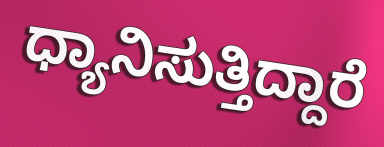
ಧ್ಯಾನಿಸುತ್ತಿದ್ದಾರೆ